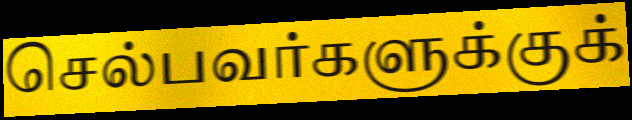
செல்பவர்களுக்குக்